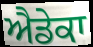
ਐਡੇਕਾ